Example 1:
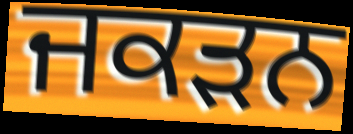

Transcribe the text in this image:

ਜਕੜਨ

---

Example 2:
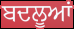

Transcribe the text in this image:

ਬਦਲੂਆਂ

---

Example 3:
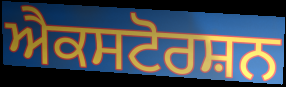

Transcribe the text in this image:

ਐਕਸਟੋਰਸ਼ਨ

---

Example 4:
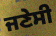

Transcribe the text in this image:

ਜਣੇਸੀ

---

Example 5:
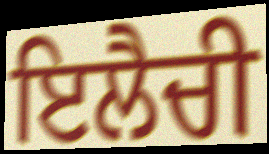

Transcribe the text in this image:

ਇਲੈਚੀ